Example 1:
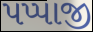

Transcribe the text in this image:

પપ્પાજી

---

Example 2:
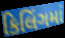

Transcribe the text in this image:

કિલિંગમાં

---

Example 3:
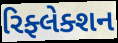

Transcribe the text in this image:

રિફ્લેક્શન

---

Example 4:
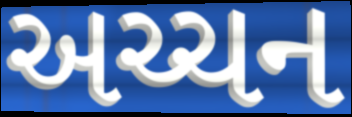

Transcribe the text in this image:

અચ્ચન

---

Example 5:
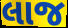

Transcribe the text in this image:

લાજ